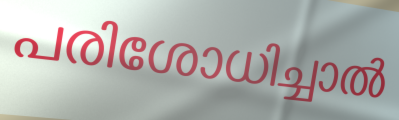
പരിശോധിച്ചാൽ